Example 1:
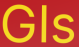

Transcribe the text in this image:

Gls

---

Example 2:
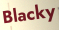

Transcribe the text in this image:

Blacky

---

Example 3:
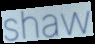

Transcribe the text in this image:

shaw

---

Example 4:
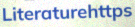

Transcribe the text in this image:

Literaturehttps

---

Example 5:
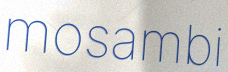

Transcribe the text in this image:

mosambi